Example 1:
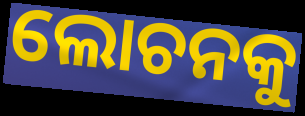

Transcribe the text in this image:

ଲୋଚନକୁ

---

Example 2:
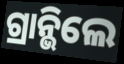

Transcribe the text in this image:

ଗ୍ରାନ୍ଭିଲେ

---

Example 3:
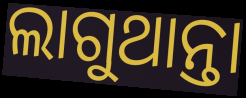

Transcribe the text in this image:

ଲାଗୁଥାନ୍ତା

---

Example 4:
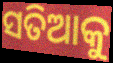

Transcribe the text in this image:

ସତିଆକୁ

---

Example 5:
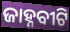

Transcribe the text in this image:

ଜାହ୍ନବୀଟି